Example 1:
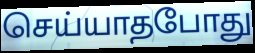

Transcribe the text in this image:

செய்யாதபோது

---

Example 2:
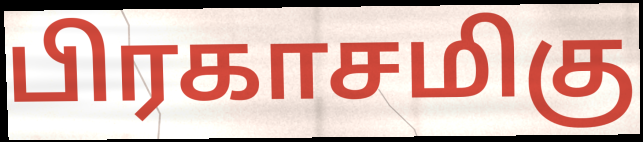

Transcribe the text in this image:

பிரகாசமிகு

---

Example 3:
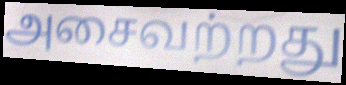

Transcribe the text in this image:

அசைவற்றது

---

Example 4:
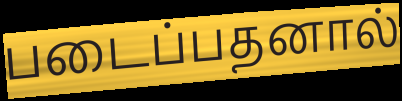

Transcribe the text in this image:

படைப்பதனால்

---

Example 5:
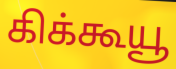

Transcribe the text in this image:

கிக்கூயூ